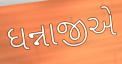
ધન્નાજીએ